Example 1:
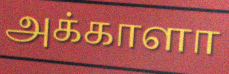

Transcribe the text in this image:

அக்காளா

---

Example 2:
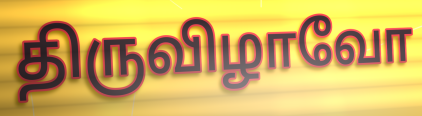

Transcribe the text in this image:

திருவிழாவோ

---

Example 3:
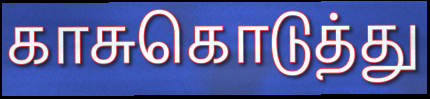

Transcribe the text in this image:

காசுகொடுத்து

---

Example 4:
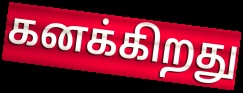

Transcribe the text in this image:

கனக்கிறது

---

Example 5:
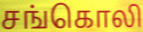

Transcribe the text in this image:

சங்கொலி